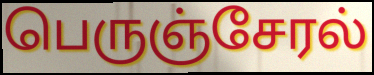
பெருஞ்சேரல்